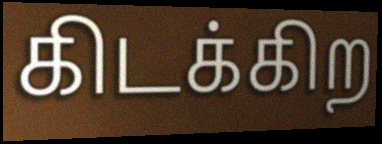
கிடக்கிற